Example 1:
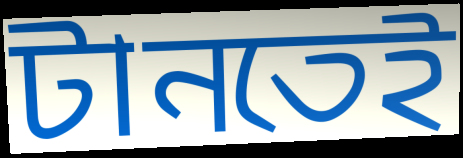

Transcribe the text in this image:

টানতেই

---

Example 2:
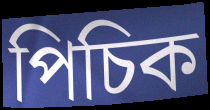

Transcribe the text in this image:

পিচিক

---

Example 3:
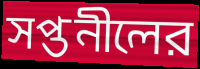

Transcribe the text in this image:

সপ্তনীলের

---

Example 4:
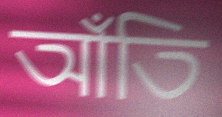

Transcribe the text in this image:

আঁতি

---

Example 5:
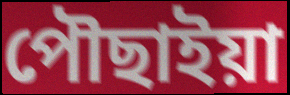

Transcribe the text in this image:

পৌছাইয়া